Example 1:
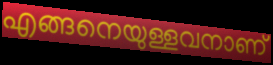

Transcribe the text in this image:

എങ്ങനെയുള്ളവനാണ്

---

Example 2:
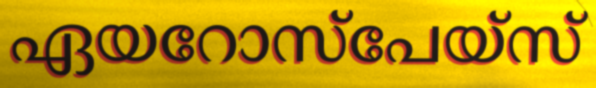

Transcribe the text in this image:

ഏയറോസ്പേയ്സ്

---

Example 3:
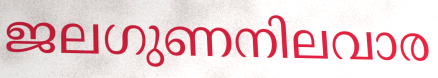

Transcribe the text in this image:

ജലഗുണനിലവാര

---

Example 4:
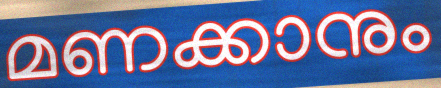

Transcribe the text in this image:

മണക്കാനും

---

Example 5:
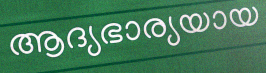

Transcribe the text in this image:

ആദ്യഭാര്യയായ